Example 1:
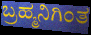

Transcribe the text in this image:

ಬ್ರಹ್ಮನಿಗಿಂತ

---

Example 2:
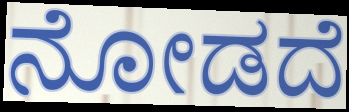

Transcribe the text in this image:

ನೋಡದೆ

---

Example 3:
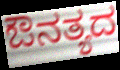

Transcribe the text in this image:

ಔನತ್ಯದ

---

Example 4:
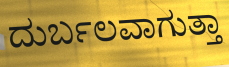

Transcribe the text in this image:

ದುರ್ಬಲವಾಗುತ್ತಾ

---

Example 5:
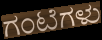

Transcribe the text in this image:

ಗಂಟೆಗಳು